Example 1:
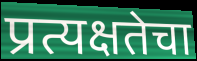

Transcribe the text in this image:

प्रत्यक्षतेचा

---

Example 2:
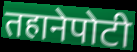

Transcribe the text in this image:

तहानेपोटी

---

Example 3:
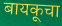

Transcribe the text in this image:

बायकूचा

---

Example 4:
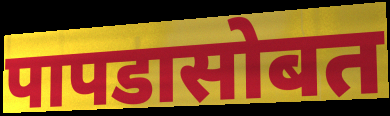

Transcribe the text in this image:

पापडासोबत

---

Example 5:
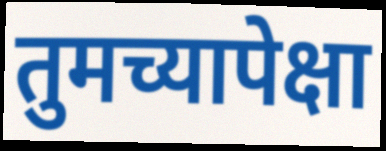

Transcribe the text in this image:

तुमच्यापेक्षा